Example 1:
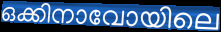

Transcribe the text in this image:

ഒക്കിനാവോയിലെ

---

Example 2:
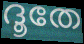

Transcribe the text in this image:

ദൂതേ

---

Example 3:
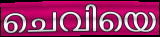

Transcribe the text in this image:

ചെവിയെ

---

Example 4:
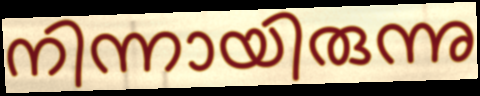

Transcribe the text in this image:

നിന്നായിരുന്നു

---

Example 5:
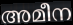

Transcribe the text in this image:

അമീന